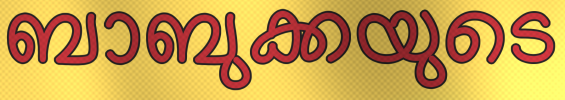
ബാബുക്കയുടെ